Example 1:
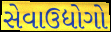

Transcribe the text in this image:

સેવાઉદ્યોગો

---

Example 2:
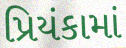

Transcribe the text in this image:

પ્રિયંકામાં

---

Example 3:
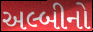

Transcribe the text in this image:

અલ્બીનો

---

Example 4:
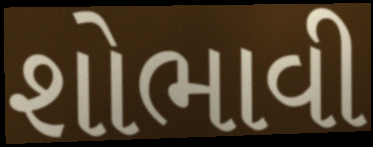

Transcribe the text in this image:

શોભાવી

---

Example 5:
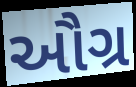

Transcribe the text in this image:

ઔગ્ર